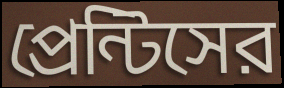
প্রেন্টিসের